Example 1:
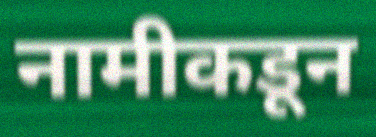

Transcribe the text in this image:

नामीकडून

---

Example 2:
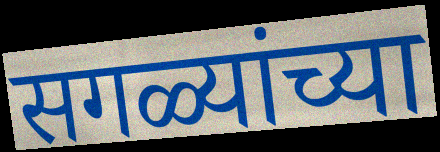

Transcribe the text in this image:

सगळ्यांच्या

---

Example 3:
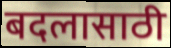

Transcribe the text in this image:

बदलासाठी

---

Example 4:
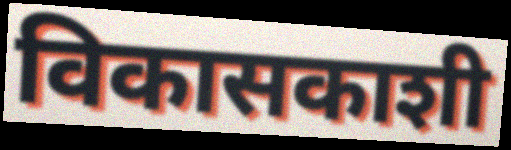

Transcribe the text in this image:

विकासकाशी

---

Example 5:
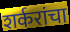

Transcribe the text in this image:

शर्करांचा